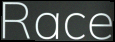
Race